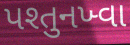
પશ્તુનખ્વા